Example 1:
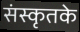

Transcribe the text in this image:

संस्कृतके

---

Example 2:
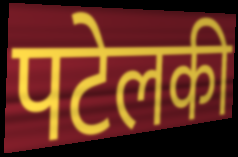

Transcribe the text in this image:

पटेलकी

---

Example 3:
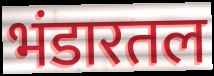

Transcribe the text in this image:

भंडारतल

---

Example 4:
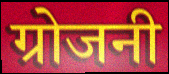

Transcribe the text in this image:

ग्रोजनी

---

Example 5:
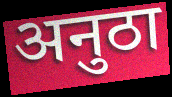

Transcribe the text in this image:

अनुठा